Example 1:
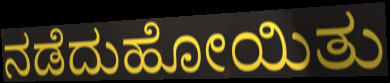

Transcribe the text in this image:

ನಡೆದುಹೋಯಿತು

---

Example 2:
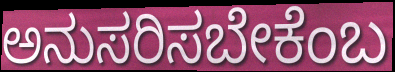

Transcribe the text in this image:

ಅನುಸರಿಸಬೇಕೆಂಬ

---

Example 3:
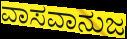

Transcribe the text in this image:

ವಾಸವಾನುಜ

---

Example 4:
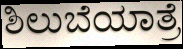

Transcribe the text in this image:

ಶಿಲುಬೆಯಾತ್ರೆ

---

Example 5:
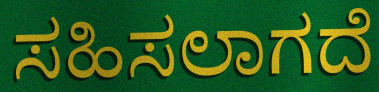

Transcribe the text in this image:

ಸಹಿಸಲಾಗದೆ